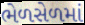
ભેળસેળમાં